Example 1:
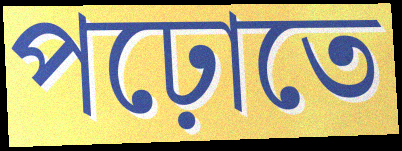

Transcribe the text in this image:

পঢ়োতে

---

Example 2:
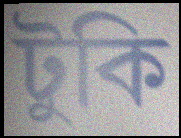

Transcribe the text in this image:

টুকি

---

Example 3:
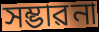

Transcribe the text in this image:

সম্ভাৱনা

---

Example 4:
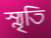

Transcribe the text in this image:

স্মৃতি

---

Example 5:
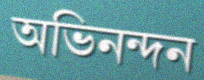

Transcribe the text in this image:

অভিনন্দন